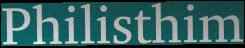
Philisthim